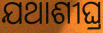
ଯଥାଶୀଘ୍ର